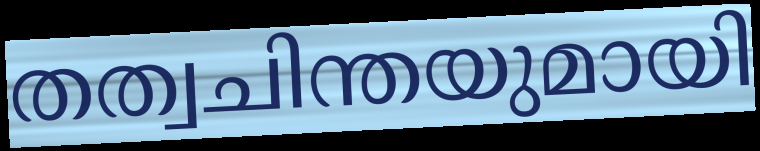
തത്വചിന്തയുമായി